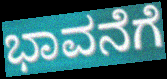
ಭಾವನೆಗೆ